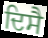
ਦਿਸੈ